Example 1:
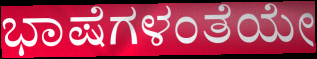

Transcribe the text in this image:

ಭಾಷೆಗಳಂತೆಯೇ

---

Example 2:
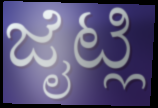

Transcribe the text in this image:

ಜೈಟ್ಲಿ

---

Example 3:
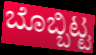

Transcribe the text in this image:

ಬೊಬ್ಬಿಟ್ಟ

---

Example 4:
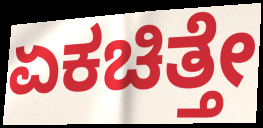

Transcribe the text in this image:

ಏಕಚಿತ್ತೇ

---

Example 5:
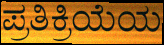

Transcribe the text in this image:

ಪ್ರತಿಕ್ರಿಯೆಯ